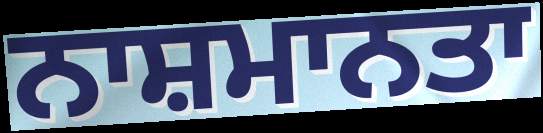
ਨਾਸ਼ਮਾਨਤਾ